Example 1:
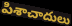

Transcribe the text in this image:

పిశాచాదులు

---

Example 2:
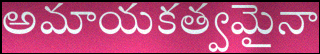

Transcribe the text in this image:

అమాయకత్వమైనా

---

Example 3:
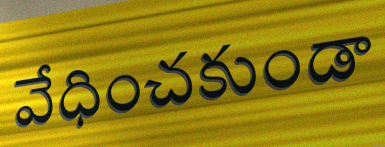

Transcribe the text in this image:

వేధించకుండా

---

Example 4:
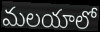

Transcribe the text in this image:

మలయాలో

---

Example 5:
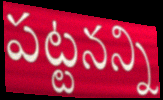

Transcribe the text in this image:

పట్టనన్ని